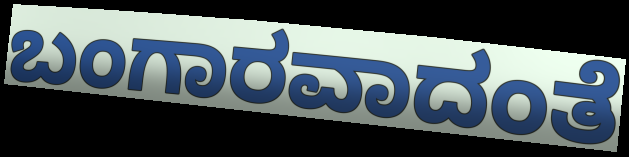
ಬಂಗಾರವಾದಂತೆ